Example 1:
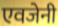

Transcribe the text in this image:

एवजेनी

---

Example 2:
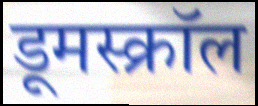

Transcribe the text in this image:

डूमस्क्रॉल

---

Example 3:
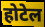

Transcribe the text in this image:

होटेल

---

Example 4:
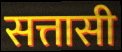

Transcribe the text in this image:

सत्तासी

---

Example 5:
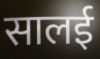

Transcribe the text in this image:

सालई